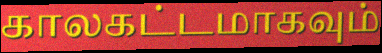
காலகட்டமாகவும்